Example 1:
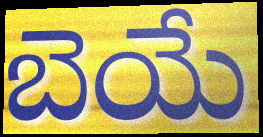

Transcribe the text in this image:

బెయే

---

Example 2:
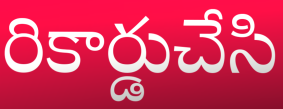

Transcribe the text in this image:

రికార్డుచేసి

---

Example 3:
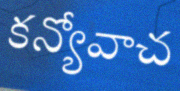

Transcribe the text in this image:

కన్యోవాచ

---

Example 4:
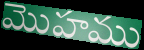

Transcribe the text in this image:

మొహము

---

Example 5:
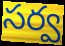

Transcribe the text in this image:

సర్వ